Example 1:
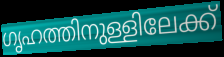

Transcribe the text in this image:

ഗൃഹത്തിനുള്ളിലേക്ക്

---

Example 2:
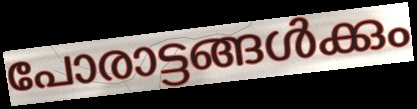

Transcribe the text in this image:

പോരാട്ടങ്ങൾക്കും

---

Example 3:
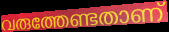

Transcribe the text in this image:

വരുത്തേണ്ടതാണ്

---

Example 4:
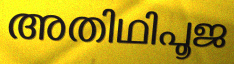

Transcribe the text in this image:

അതിഥിപൂജ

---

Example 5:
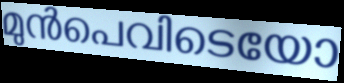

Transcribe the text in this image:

മുൻപെവിടെയോ